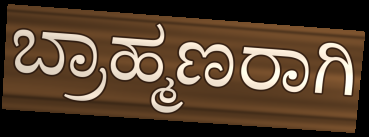
ಬ್ರಾಹ್ಮಣರಾಗಿ